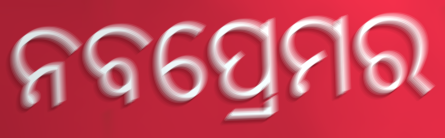
ନବପ୍ରେମର